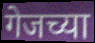
गेजच्या